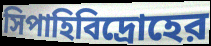
সিপাহিবিদ্রোহের